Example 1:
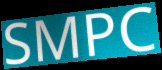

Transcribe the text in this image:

SMPC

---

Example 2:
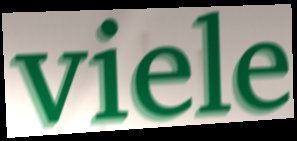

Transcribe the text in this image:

viele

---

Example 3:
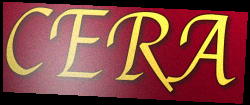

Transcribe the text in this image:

CERA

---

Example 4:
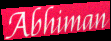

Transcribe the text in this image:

Abhiman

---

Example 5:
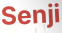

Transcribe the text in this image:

Senji